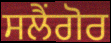
ਸਲੈਂਗੋਰ